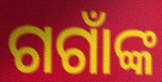
ଗଗାଁଙ୍କ